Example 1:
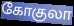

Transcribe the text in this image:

கோகுலா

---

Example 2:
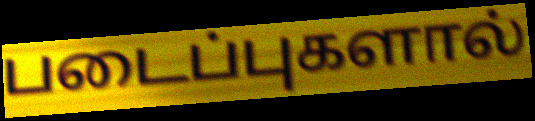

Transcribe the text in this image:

படைப்புகளால்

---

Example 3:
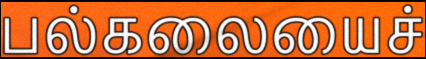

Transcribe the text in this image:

பல்கலையைச்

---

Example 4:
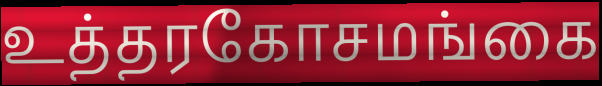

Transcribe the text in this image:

உத்தரகோசமங்கை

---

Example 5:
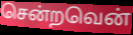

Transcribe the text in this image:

சென்றவென்